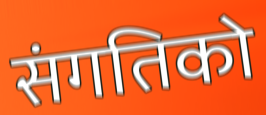
संगतिको